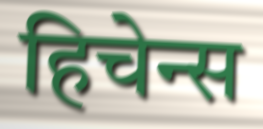
हिचेन्स